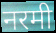
नरमी